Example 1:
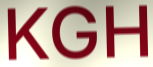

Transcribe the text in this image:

KGH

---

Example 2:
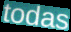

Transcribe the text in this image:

todas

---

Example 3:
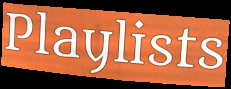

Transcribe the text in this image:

Playlists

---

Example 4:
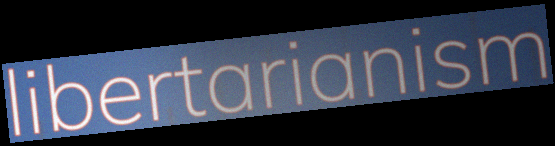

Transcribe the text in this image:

libertarianism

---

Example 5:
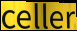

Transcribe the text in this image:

celler